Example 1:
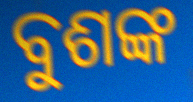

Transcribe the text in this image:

ବୁଶଙ୍କ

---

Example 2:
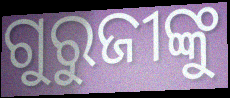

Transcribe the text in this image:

ଗୁରୁଜୀଙ୍କୁ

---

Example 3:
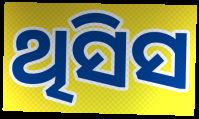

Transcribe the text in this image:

ଥିସିସ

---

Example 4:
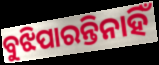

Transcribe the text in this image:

ବୁଝିପାରନ୍ତିନାହିଁ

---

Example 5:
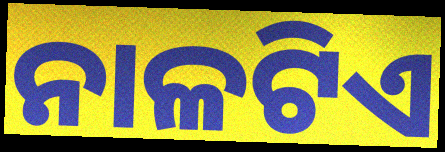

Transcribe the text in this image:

ନାଳଟିଏ